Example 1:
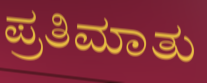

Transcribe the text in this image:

ಪ್ರತಿಮಾತು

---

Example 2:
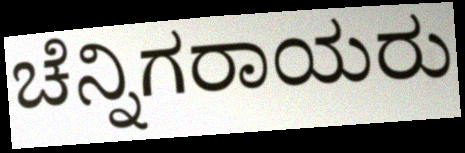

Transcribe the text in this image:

ಚೆನ್ನಿಗರಾಯರು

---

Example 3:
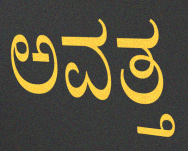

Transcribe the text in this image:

ಅವತ್ತ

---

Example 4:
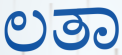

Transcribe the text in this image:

ಲತಾ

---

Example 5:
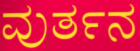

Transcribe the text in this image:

ವುರ್ತನ